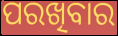
ପରଖିବାର